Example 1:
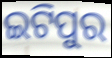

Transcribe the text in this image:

ଇଟିପୁର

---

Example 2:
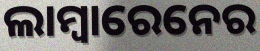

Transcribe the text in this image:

ଲାମ୍ବାରେନେର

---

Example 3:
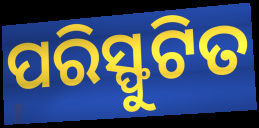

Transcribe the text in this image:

ପରିସ୍ଫୁଟିତ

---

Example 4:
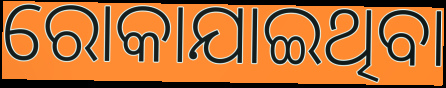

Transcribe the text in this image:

ରୋକାଯାଇଥିବା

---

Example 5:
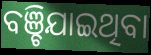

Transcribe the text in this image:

ବଞ୍ଚିଯାଇଥିବା